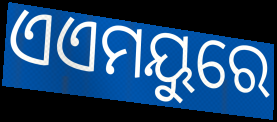
ଏଏମୟୁରେ